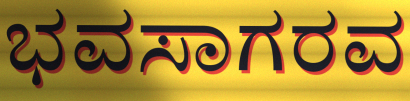
ಭವಸಾಗರವ